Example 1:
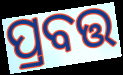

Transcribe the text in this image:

ପ୍ରବତ୍ତ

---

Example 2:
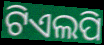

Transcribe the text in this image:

ଟିଏଲପି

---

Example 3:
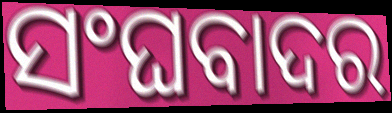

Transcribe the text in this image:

ସଂଘବାଦର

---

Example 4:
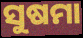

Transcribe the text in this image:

ସୁଷମା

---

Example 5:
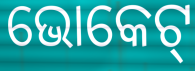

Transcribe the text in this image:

ଭୋକେଟ୍